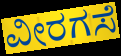
ವೀರಗಸೆ